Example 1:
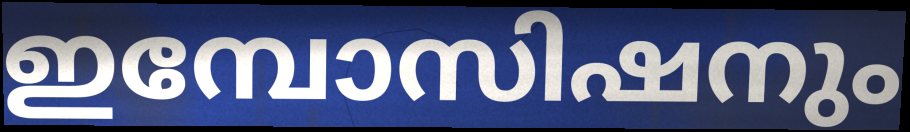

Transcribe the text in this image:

ഇമ്പോസിഷനും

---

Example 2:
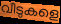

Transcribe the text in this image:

വീടുകളെ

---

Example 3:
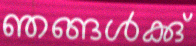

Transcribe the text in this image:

ഞങ്ങൾക്കു്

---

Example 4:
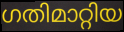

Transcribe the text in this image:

ഗതിമാറ്റിയ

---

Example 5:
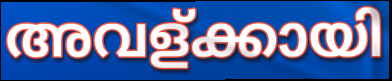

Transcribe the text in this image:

അവള്ക്കായി